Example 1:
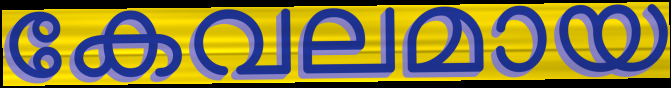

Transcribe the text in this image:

കേവലമായ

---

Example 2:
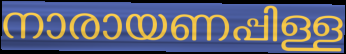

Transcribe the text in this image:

നാരായണപ്പിള്ള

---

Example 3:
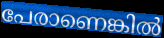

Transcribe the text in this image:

പേരാണെങ്കിൽ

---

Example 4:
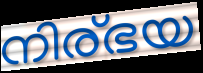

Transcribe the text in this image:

നിര്ഭയ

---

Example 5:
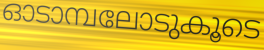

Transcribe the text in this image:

ഓടാമ്പലോടുകൂടെ